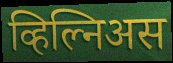
व्हिल्निअस